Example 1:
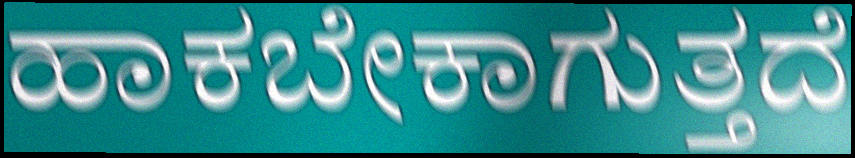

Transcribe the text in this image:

ಹಾಕಬೇಕಾಗುತ್ತದೆ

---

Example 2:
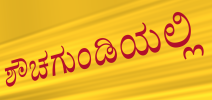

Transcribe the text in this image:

ಶೌಚಗುಂಡಿಯಲ್ಲಿ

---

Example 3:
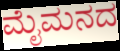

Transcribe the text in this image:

ಮೈಮನದ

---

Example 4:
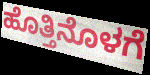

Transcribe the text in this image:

ಹೊತ್ತಿನೊಳಗೆ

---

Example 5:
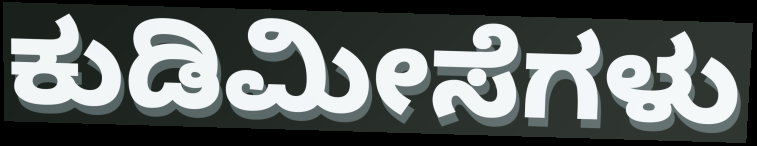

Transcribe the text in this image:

ಕುಡಿಮೀಸೆಗಳು